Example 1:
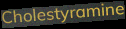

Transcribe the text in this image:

Cholestyramine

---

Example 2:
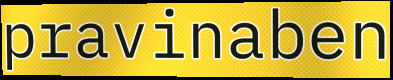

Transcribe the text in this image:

pravinaben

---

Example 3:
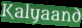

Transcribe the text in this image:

Kalyaand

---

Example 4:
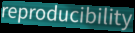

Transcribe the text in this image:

reproducibility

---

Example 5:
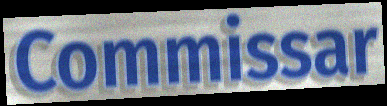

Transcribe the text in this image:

Commissar